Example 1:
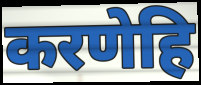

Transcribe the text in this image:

करणेहि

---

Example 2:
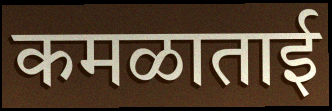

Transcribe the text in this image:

कमळाताई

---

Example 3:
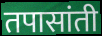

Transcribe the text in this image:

तपासांती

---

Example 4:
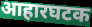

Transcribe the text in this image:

आहारघटक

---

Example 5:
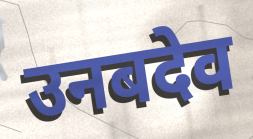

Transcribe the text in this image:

उनबदेव